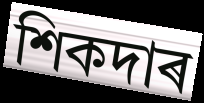
শিকদাৰ